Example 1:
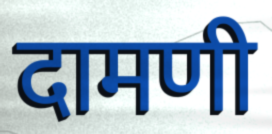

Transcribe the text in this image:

दामणी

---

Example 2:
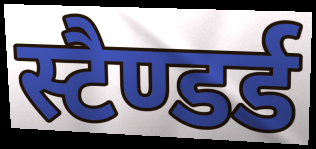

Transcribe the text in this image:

स्टैण्डर्ड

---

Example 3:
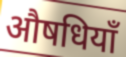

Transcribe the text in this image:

औषधियाँ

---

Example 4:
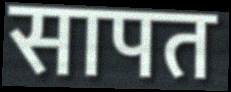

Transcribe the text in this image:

सापत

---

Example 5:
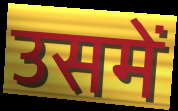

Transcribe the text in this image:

उसमें